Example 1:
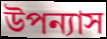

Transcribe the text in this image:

উপন্যাস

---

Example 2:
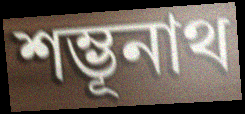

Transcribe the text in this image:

শম্ভূনাথ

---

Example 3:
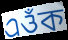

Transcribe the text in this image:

এওঁক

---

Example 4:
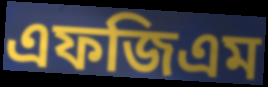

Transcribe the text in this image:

এফজিএম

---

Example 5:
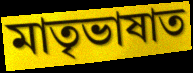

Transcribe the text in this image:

মাতৃভাষাত